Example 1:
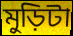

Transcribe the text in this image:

মুড়িটা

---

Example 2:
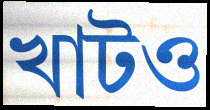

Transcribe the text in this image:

খাটও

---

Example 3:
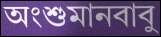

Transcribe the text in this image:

অংশুমানবাবু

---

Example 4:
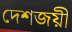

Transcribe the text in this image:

দেশজয়ী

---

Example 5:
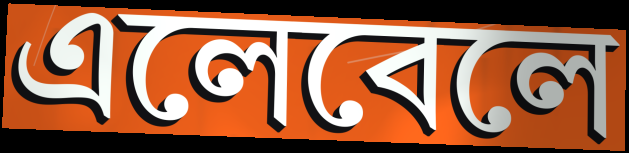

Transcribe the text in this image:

এলেবেলে